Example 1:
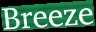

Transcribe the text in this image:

Breeze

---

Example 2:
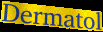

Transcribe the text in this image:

Dermatol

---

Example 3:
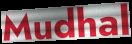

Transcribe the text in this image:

Mudhal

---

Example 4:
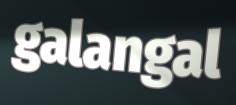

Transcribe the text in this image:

galangal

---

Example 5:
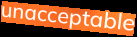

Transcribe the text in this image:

unacceptable